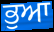
ਭੁਆ